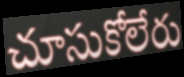
చూసుకోలేరు